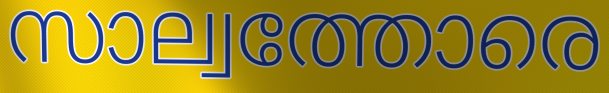
സാല്വത്തോരെ